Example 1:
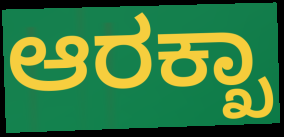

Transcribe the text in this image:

ಆರಕ್ಖಾ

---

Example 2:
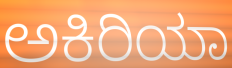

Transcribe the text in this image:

ಅಕಿರಿಯಾ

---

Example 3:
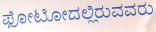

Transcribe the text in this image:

ಫೋಟೋದಲ್ಲಿರುವವರು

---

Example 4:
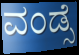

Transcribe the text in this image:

ವಂಡ್ಸೆ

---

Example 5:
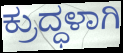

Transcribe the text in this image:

ಕ್ರುದ್ಧಳಾಗಿ